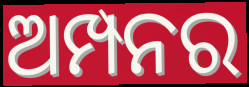
ଅମ୍ପନର